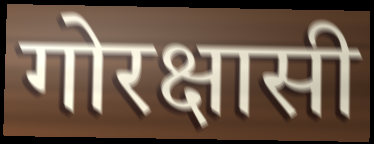
गोरक्षासी